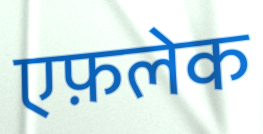
एफ़लेक